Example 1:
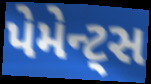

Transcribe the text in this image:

પેમેન્ટ્સ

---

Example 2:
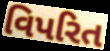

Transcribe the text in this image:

વિપરિત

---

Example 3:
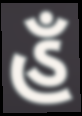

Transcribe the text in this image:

હઁ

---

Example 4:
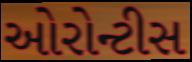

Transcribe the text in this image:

ઓરોન્ટીસ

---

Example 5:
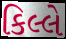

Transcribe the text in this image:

કિલ્લે